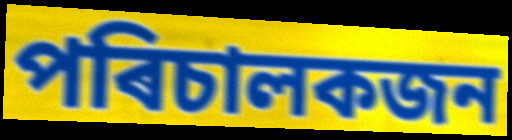
পৰিচালকজন